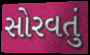
સોરવતું